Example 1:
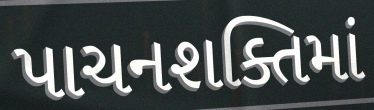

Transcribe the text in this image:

પાચનશક્તિમાં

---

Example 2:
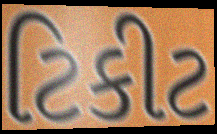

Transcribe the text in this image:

ટિકીટ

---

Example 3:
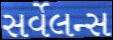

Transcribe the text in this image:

સર્વેલન્સ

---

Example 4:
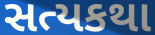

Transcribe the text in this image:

સત્યકથા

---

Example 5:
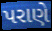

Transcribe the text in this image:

પરાણે